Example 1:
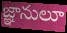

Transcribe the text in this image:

జ్ఞానులూ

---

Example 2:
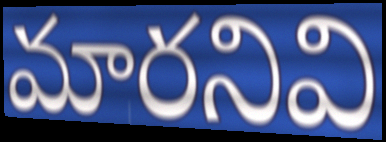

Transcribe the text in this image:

మారనివి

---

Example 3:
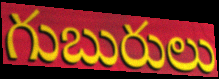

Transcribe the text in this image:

గుబురులు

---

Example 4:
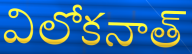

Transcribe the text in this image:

విలోకనాత్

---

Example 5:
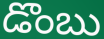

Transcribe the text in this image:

డొంబు